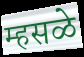
म्हसळे